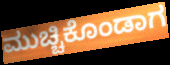
ಮುಚ್ಚಿಕೊಂಡಾಗ